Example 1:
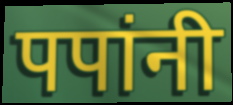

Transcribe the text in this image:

पपांनी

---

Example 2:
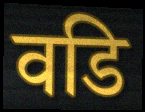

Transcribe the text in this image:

वडि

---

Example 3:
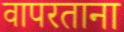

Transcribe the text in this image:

वापरताना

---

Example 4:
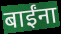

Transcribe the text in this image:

बाईंना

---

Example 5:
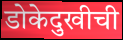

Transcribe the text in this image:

डोकेदुखीची